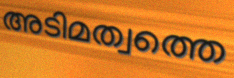
അടിമത്വത്തെ